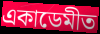
একাডেমীত